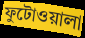
ফুটোওয়ালা